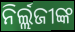
ନିର୍ଲ୍ଲଜୀଙ୍କ